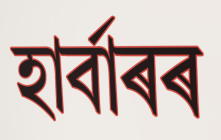
হাৰ্বাৰৰ